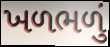
ખળભળું